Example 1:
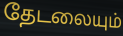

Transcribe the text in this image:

தேடலையும்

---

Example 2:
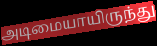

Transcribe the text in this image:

அடிமையாயிருந்து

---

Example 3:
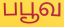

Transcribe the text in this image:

பபூவ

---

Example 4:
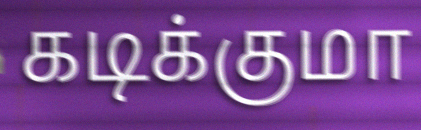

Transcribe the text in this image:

கடிக்குமா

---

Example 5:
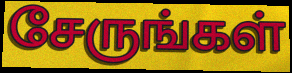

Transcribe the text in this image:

சேருங்கள்